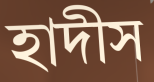
হাদীস